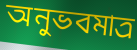
অনুভবমাত্র